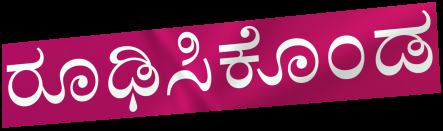
ರೂಢಿಸಿಕೊಂಡ